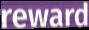
reward